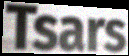
Tsars